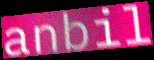
anbil